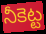
నీకెట్ట